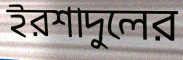
ইরশাদুলের